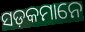
ସଡ଼କମାନେ